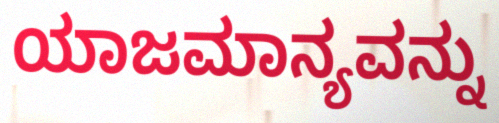
ಯಾಜಮಾನ್ಯವನ್ನು